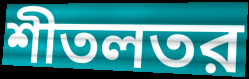
শীতলতর